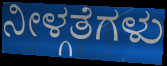
ನೀಳ್ಗತೆಗಳು